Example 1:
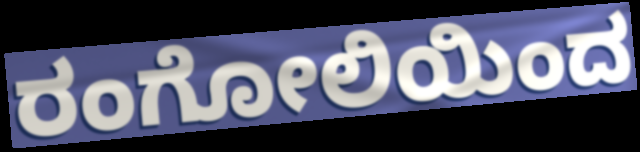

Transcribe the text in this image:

ರಂಗೋಲಿಯಿಂದ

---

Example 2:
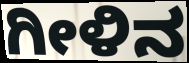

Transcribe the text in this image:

ಗೀಳಿನ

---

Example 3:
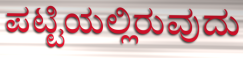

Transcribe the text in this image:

ಪಟ್ಟಿಯಲ್ಲಿರುವುದು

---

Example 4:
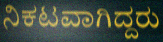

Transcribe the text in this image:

ನಿಕಟವಾಗಿದ್ದರು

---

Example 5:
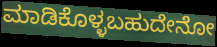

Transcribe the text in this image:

ಮಾಡಿಕೊಳ್ಳಬಹುದೇನೋ